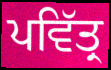
ਪਵਿੱਤ੍ਰ